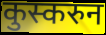
कुस्करुन